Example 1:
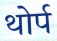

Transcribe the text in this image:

थोर्प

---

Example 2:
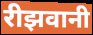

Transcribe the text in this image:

रीझवानी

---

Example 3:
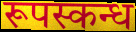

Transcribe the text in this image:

रूपस्कन्ध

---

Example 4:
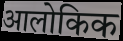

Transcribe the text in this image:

आलोकिक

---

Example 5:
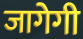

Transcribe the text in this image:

जागेगी